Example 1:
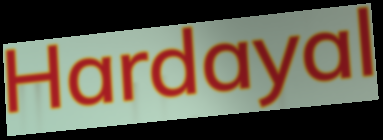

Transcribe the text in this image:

Hardayal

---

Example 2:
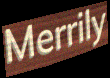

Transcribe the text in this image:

Merrily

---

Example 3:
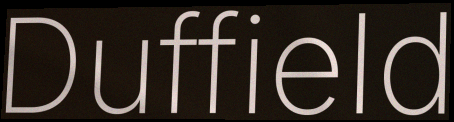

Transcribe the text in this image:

Duffield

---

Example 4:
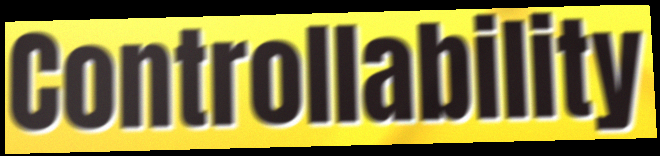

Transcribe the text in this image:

Controllability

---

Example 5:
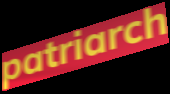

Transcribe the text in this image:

patriarch